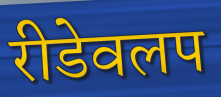
रीडेवलप